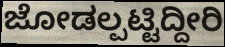
ಜೋಡಲ್ಪಟ್ಟಿದ್ದೀರಿ